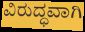
ವಿರುದ್ಧವಾಗಿ